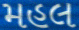
મહલ